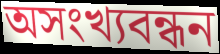
অসংখ্যবন্ধন